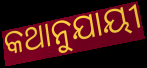
କଥାନୁଯାୟୀ